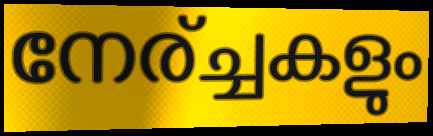
നേര്ച്ചകളും